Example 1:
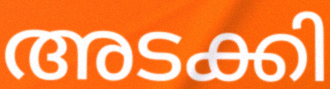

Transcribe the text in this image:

അടക്കി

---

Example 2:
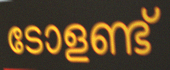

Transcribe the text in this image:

ടോളണ്ട്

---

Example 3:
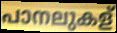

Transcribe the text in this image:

പാനലുകള്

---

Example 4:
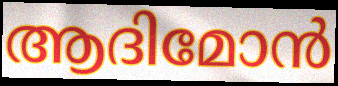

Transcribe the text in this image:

ആദിമോൻ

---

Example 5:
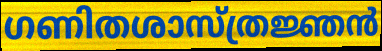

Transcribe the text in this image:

ഗണിതശാസ്ത്രജ്ഞൻ